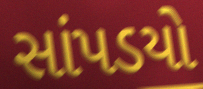
સાંપડયો